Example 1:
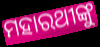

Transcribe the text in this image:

ମହାରଥୀଙ୍କୁ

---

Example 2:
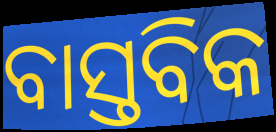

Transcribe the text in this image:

ବାସ୍ତବିକ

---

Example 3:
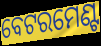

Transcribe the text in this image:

ବେଟରମେଣ୍ଟ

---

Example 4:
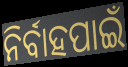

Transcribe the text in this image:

ନିର୍ବାହପାଇଁ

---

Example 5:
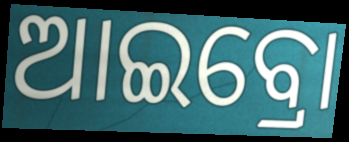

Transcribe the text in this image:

ଆଇବ୍ରୋ